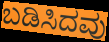
ಬಡಿಸಿದವು